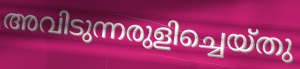
അവിടുന്നരുളിച്ചെയ്തു